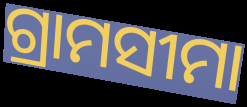
ଗ୍ରାମସୀମା